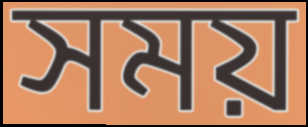
সময়